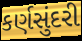
કર્ણસુંદરી